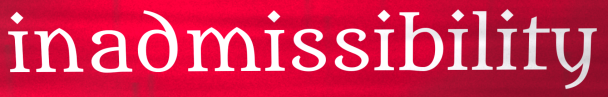
inadmissibility